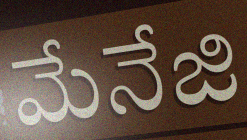
మేనేజి